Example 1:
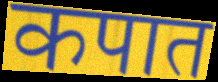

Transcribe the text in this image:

कपात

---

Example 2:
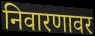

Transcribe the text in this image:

निवारणावर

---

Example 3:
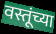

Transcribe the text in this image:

वस्तूंच्या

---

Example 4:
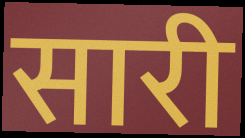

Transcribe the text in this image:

सारी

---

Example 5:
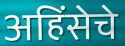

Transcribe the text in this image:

अहिंसेचे